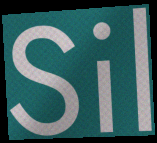
Sil